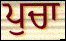
ਪੁਚਾ